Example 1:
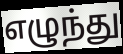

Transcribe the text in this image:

எழுந்து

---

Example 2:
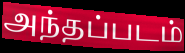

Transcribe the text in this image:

அந்தப்படம்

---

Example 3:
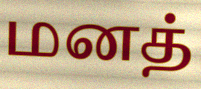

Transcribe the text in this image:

மனத்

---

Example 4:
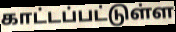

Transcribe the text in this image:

காட்டப்பட்டுள்ள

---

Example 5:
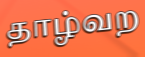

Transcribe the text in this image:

தாழ்வற